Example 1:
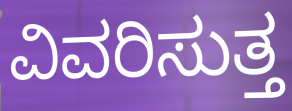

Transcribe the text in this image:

ವಿವರಿಸುತ್ತ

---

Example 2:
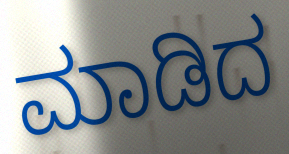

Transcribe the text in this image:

ಮಾಡಿದ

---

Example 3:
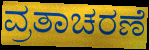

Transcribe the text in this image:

ವ್ರತಾಚರಣೆ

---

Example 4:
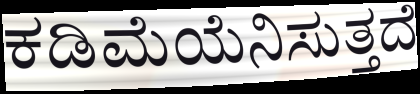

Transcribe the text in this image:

ಕಡಿಮೆಯೆನಿಸುತ್ತದೆ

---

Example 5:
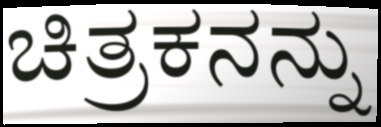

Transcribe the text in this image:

ಚಿತ್ರಕನನ್ನು